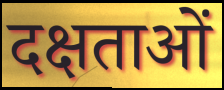
दक्षताओं